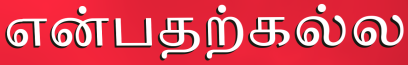
என்பதற்கல்ல